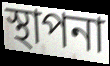
স্থাপনা